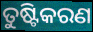
ତୁଷ୍ଟିକରଣ